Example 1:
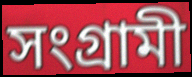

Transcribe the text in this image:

সংগ্রামী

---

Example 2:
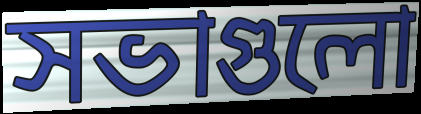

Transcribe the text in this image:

সভাগুলো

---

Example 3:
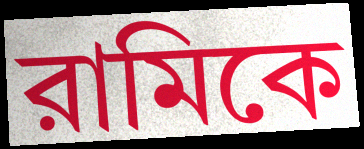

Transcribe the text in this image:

রামিকে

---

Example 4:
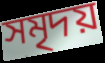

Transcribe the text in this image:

সমৃদয়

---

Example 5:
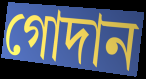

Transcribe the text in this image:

গোদান